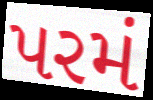
પરમં